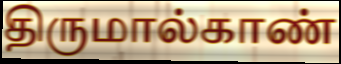
திருமால்காண்